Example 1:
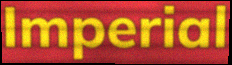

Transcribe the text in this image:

Imperial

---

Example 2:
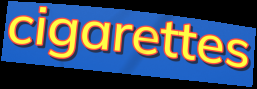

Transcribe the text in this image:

cigarettes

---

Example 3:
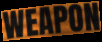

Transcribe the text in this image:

WEAPON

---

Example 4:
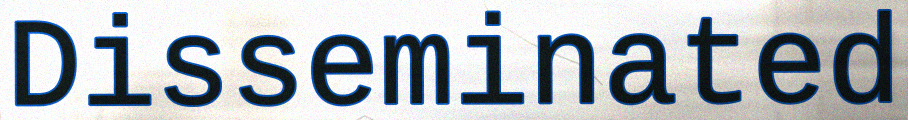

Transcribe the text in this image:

Disseminated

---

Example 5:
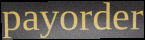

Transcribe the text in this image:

payorder